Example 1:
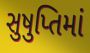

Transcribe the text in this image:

સુષુપ્તિમાં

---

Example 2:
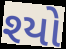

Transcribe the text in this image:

શ્યો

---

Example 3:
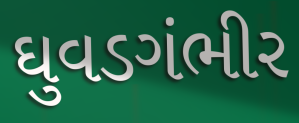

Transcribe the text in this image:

ઘુવડગંભીર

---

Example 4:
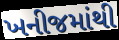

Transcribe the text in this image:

ખનીજમાંથી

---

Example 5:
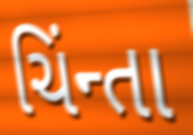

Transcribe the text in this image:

ચિંન્તા